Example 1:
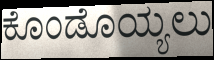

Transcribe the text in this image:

ಕೊಂಡೊಯ್ಯಲು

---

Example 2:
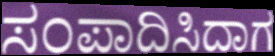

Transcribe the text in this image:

ಸಂಪಾದಿಸಿದಾಗ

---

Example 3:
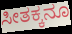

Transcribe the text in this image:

ಸೀತಕ್ಕನೂ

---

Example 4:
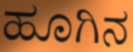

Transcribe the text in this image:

ಹೂಗಿನ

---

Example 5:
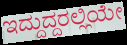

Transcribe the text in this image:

ಇದ್ದುದ್ದರಲ್ಲಿಯೇ